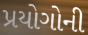
પ્રયોગોની